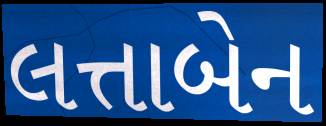
લત્તાબેન